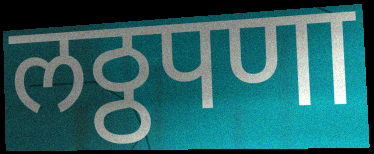
लठ्ठपणा